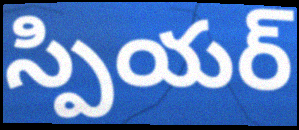
స్పియర్